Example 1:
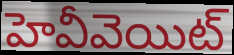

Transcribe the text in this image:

హెవీవెయిట్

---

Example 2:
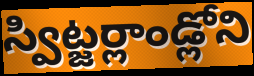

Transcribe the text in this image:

స్విట్జర్లాండ్లోని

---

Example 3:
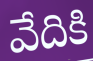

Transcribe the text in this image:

వేదికి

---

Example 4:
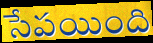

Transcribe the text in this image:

సేపయింది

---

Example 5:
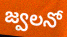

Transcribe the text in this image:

జ్వలనో